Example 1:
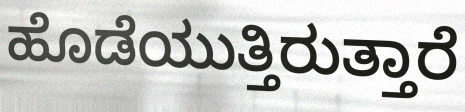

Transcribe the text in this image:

ಹೊಡೆಯುತ್ತಿರುತ್ತಾರೆ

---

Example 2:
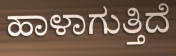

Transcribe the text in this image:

ಹಾಳಾಗುತ್ತಿದೆ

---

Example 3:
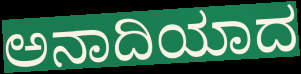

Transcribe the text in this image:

ಅನಾದಿಯಾದ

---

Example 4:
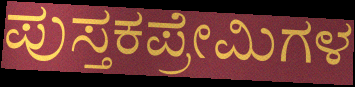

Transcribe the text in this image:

ಪುಸ್ತಕಪ್ರೇಮಿಗಳ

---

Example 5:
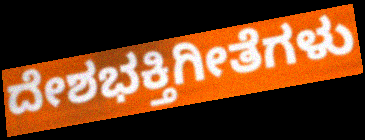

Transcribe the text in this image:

ದೇಶಭಕ್ತಿಗೀತೆಗಳು